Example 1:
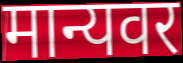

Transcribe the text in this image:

मान्यवर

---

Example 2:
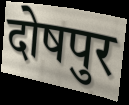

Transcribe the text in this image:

दोषपुर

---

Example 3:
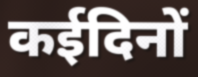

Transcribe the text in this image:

कईदिनों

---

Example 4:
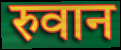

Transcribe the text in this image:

रुवान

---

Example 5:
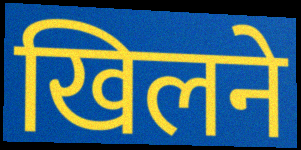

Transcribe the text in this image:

खिलने